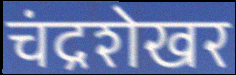
चंद्रशेखर